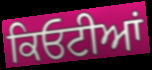
ਕਿਓਟੀਆਂ